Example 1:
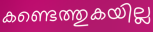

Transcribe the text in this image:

കണ്ടെത്തുകയില്ല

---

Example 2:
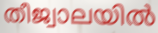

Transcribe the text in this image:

തീജ്വാലയിൽ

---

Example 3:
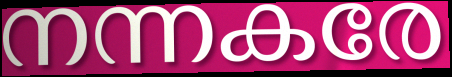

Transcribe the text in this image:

നന്നകരേ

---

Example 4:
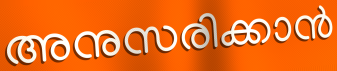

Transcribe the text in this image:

അനുസരിക്കാൻ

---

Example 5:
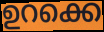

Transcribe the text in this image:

ഉറക്കെ